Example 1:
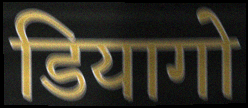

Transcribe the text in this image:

डियागो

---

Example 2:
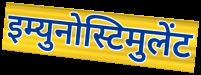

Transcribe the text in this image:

इम्युनोस्टिमुलेंट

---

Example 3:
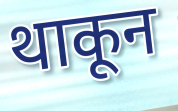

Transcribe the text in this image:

थाकून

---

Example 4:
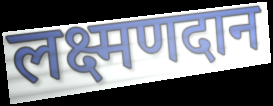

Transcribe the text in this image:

लक्ष्मणदान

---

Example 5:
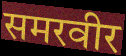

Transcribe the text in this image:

समरवीर